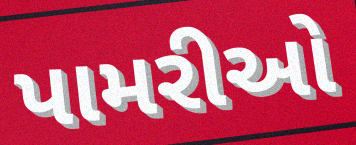
પામરીઓ